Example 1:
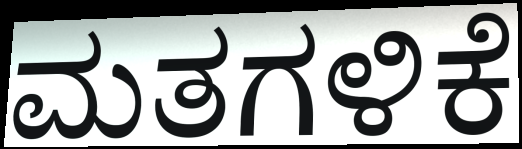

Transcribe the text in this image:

ಮತಗಳಿಕೆ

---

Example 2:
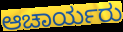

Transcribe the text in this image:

ಆಚಾರ್ಯರು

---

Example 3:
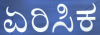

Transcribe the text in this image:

ಏರಿಸಿಕ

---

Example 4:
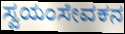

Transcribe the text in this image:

ಸ್ವಯಂಸೇವಕನ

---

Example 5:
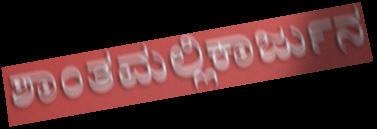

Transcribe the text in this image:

ಶಾಂತಮಲ್ಲಿಕಾರ್ಜುನ